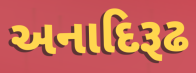
અનાદિરૂઢ